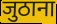
जुठाना